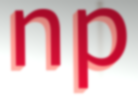
np